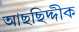
আছছিদ্দীক